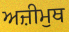
ਅਜ਼ੀਮੁਥ